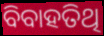
ବିବାହତିଥି